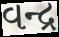
વન્દ્ર